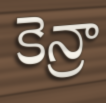
కెన్రా